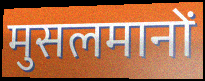
मुसलमानों